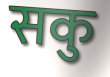
सकु